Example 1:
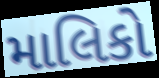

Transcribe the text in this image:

માલિકો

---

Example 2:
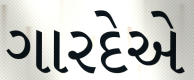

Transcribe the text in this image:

ગારદેએ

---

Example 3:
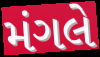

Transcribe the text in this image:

મંગલે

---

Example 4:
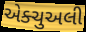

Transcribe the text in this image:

એક્ચુઅલી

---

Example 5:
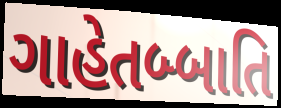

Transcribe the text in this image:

ગાહેતબ્બાતિ